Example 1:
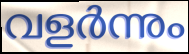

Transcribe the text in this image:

വളർന്നും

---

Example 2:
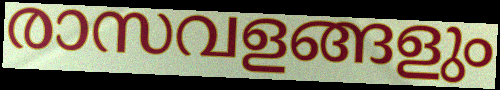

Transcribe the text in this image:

രാസവളങ്ങളും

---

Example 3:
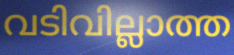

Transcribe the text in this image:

വടിവില്ലാത്ത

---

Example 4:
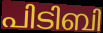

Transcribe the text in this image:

പിടിബി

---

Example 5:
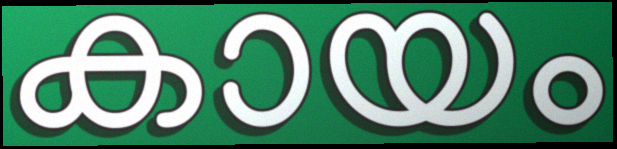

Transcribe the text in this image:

കായം